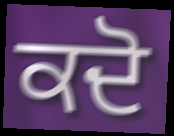
ਕਦੋ